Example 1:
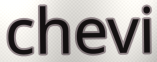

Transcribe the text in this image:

chevi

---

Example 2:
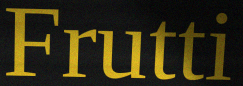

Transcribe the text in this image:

Frutti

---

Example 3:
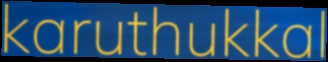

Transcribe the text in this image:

karuthukkal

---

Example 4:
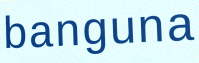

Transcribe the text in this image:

banguna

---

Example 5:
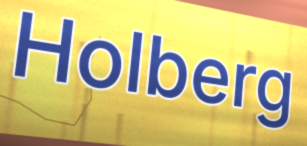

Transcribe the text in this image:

Holberg